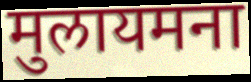
मुलायमना